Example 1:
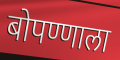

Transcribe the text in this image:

बोपण्णाला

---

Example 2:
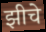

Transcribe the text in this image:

झीचे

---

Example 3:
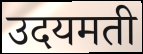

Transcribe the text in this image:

उदयमती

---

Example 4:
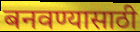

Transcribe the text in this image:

बनवण्‍यासाठी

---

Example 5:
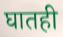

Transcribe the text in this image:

घातही